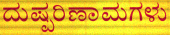
ದುಷ್ಪರಿಣಾಮಗಳು